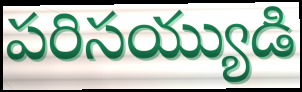
పరిసయ్యుడి